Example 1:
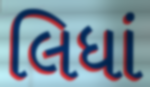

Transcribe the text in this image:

લિધાં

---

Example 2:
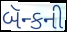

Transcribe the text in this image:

બૅન્કની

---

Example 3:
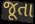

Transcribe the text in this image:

જૂતા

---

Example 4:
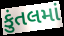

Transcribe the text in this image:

કુંતલમાં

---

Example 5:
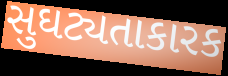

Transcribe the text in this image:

સુઘટ્યતાકારક